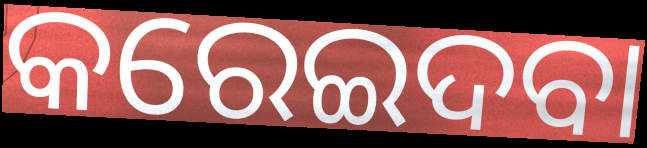
କରେଇଦବା